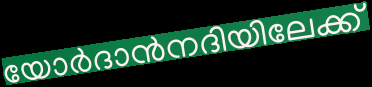
യോർദാൻനദിയിലേക്ക്